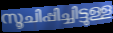
സൂചിപ്പിച്ചിട്ടുള്ള